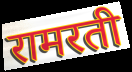
रामरती